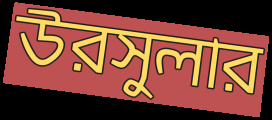
উরসুলার